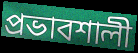
প্ৰভাবশালী